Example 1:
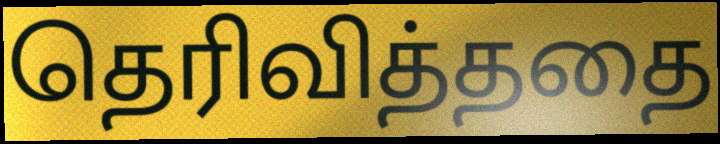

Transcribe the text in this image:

தெரிவித்ததை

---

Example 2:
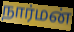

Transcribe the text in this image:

நார்மன்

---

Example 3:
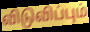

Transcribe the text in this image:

விடுவிப்பும்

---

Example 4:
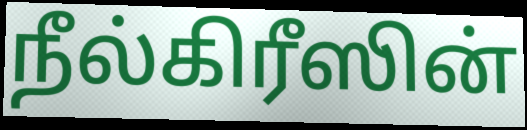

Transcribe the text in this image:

நீல்கிரீஸின்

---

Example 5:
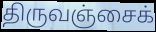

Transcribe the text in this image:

திருவஞ்சைக்